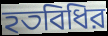
হতবিধির